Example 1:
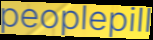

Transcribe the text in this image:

peoplepill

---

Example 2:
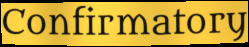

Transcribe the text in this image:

Confirmatory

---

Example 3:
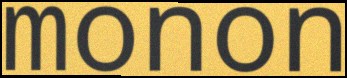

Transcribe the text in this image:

monon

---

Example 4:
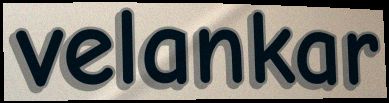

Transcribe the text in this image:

velankar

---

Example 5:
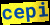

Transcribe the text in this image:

cepi